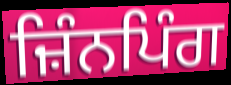
ਜ਼ਿੰਨਪਿੰਗ